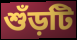
শুঁড়টি